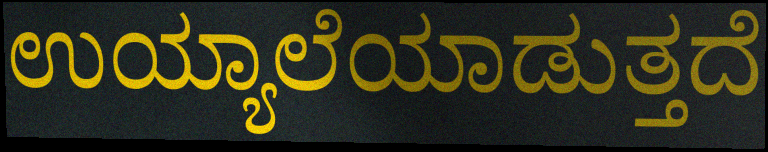
ಉಯ್ಯಾಲೆಯಾಡುತ್ತದೆ